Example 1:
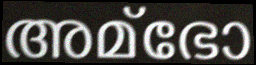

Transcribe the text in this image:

അമ്ഭോ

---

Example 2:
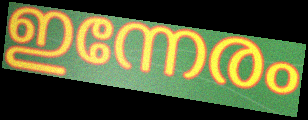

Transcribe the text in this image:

ഇന്നേരം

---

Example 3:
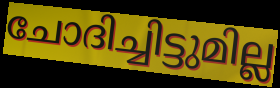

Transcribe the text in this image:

ചോദിച്ചിട്ടുമില്ല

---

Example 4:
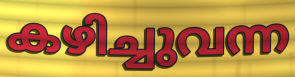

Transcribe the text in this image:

കഴിച്ചുവന്ന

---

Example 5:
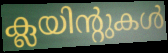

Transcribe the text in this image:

ക്ലയിന്റുകൾ